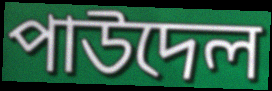
পাউদেল